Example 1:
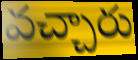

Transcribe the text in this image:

వచ్చారు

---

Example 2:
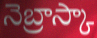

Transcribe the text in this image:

నెబ్రాస్కా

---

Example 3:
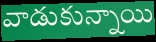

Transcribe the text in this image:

వాడుకున్నాయి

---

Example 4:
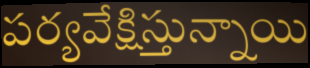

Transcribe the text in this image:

పర్యవేక్షిస్తున్నాయి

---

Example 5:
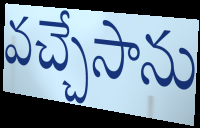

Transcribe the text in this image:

వచ్చేసాను